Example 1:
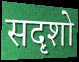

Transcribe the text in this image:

सदृशो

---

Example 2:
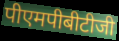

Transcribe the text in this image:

पीएमपीबीटीजी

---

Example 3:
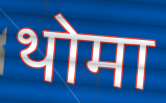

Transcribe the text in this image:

थोमा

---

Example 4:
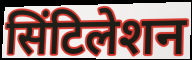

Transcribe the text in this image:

सिंटिलेशन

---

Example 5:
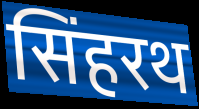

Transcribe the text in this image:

सिंहरथ